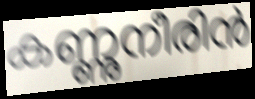
കണ്ണുനീരിൻ